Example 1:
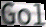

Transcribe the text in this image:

Gol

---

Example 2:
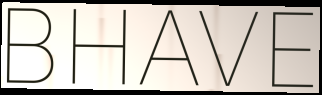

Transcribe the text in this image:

BHAVE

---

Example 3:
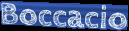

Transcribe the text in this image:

Boccacio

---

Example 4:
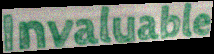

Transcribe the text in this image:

Invaluable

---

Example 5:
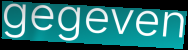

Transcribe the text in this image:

gegeven